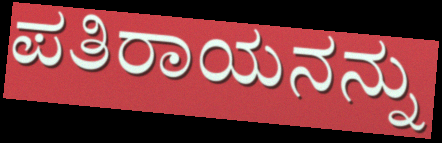
ಪತಿರಾಯನನ್ನು